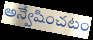
అన్వేషించటం